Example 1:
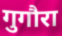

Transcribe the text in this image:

गुगौरा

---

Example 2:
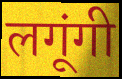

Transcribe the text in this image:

लगूंगी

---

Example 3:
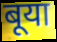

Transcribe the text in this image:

बूया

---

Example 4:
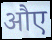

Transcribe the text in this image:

औए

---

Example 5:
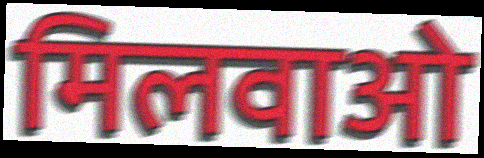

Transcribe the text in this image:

मिलवाओ